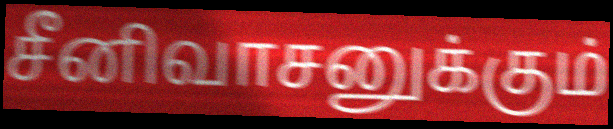
சீனிவாசனுக்கும்